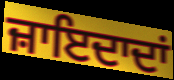
ਜ਼ਾਇਦਾਦਾਂ